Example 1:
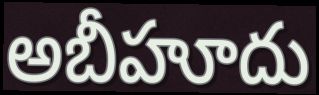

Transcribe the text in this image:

అబీహూదు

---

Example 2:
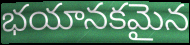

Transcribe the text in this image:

భయానకమైన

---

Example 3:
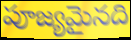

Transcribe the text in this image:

పూజ్యమైనది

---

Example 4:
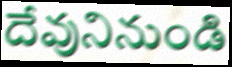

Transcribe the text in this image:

దేవునినుండి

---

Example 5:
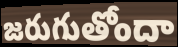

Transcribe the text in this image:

జరుగుతోందా